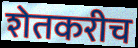
शेतकरीच